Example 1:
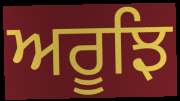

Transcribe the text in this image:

ਅਰੂਝਿ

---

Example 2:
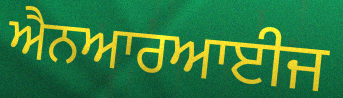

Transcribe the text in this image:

ਐਨਆਰਆਈਜ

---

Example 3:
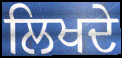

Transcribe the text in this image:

ਲਿਖਦੇ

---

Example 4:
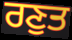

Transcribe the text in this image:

ਰਣੁਤ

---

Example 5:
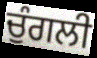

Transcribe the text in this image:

ਚੁੰਗਲੀ